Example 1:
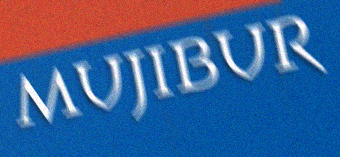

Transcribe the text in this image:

MUJIBUR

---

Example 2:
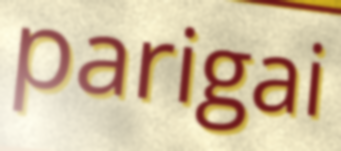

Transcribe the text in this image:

parigai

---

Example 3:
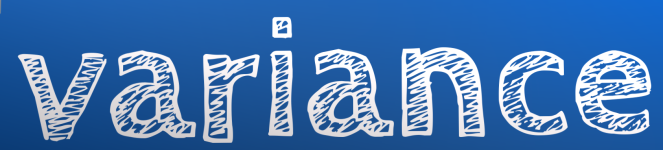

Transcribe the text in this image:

variance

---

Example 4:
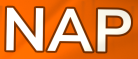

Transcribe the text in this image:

NAP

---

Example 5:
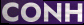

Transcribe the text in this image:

CONH